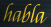
habla